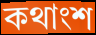
কথাংশ